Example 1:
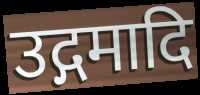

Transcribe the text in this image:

उद्गमादि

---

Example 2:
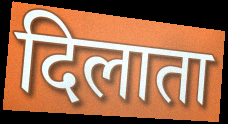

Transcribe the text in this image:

दिलाता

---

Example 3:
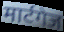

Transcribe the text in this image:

मार्टगेज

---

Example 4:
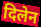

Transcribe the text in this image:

दिलेन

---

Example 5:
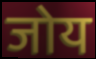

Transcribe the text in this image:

जोय